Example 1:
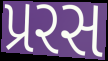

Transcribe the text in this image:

પ્રરસ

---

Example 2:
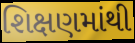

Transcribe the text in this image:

શિક્ષણમાંથી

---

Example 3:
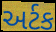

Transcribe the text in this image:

અર્ટક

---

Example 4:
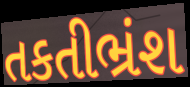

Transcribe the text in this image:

તકતીભ્રંશ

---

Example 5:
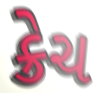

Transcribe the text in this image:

ક્રેચ